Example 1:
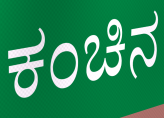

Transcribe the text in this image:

ಕಂಚಿನ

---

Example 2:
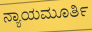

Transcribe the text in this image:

ನ್ಯಾಯಮೂರ್ತಿ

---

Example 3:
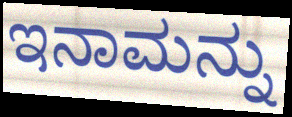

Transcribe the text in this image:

ಇನಾಮನ್ನು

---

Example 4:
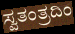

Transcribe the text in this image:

ಸ್ವತಂತ್ರದಿಂ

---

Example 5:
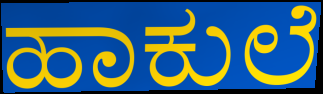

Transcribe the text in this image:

ಹಾಕುಲೆ